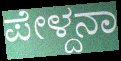
ಪೇಳ್ದನಾ